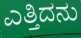
ಎತ್ತಿದನು